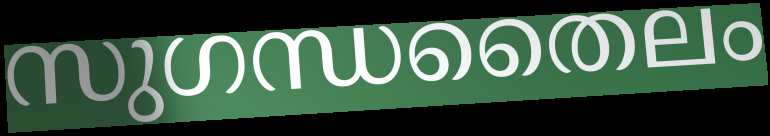
സുഗന്ധതൈലം